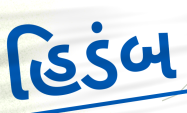
હિડંબ